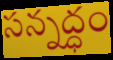
సన్నద్ధం